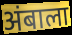
अंबाला